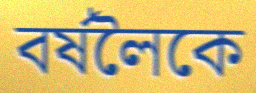
বৰ্ষলৈকে